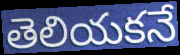
తెలియకనే